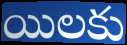
యిలకు